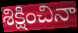
శిక్షించినా